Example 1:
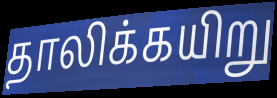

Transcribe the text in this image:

தாலிக்கயிறு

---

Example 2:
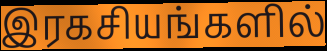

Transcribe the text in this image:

இரகசியங்களில்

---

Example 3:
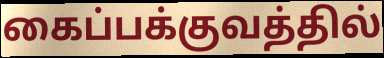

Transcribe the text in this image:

கைப்பக்குவத்தில்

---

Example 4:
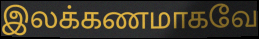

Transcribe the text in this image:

இலக்கணமாகவே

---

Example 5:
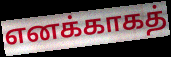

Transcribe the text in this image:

எனக்காகத்